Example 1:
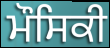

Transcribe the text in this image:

ਮੌਸਿਕੀ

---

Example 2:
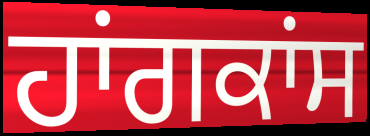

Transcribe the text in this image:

ਹਾਂਗਕਾਂਸ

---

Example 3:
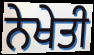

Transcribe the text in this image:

ਨੇਖੇਤੀ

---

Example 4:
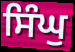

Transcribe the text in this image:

ਸਿੰਘੁ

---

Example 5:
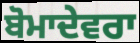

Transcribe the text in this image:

ਬੋਮਾਦੇਵਰਾ